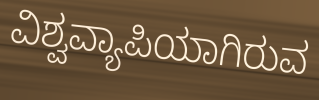
ವಿಶ್ವವ್ಯಾಪಿಯಾಗಿರುವ